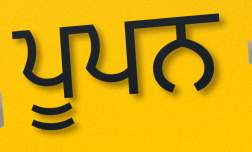
ਪੂਪਨ